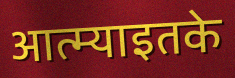
आत्म्याइतके